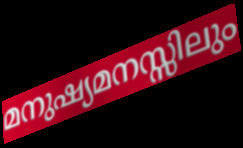
മനുഷ്യമനസ്സിലും